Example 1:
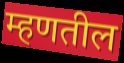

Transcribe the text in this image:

म्हणतील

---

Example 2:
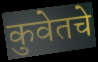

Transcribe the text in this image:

कुवेतचे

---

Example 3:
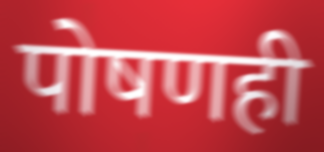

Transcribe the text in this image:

पोषणही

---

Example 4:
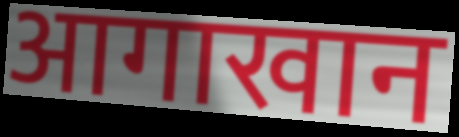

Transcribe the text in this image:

आगाखान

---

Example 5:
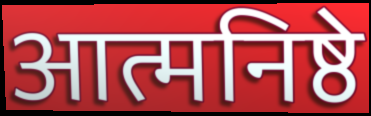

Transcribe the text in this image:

आत्मनिष्ठे